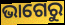
ଭାଗେରୁ